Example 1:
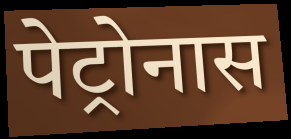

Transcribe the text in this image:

पेट्रोनास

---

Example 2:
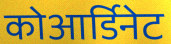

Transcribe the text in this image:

कोआर्डिनेट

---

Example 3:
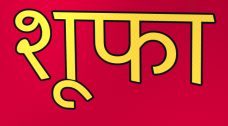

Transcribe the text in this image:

शूफा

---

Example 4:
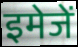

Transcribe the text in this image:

इमेजें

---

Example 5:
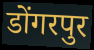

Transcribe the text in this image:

डोंगरपुर